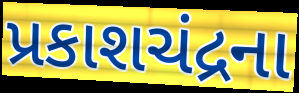
પ્રકાશચંદ્રના